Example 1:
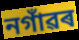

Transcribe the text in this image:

নগাঁৱৰ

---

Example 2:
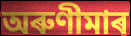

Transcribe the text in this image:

অৰুণীমাৰ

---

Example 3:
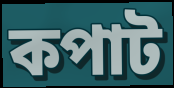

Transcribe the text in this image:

কপাট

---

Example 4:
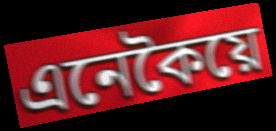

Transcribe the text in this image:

এনেকৈয়ে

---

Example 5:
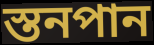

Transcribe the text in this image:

স্তনপান